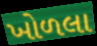
ખોળલા